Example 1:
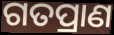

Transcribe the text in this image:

ଗତପ୍ରାଣ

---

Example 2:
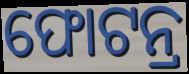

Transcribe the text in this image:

ଫୋଟନ୍ର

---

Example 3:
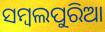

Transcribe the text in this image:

ସମ୍ୱଲପୁରିଆ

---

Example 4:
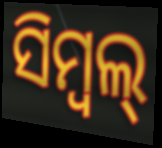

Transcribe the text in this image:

ସିମ୍ବଲ୍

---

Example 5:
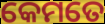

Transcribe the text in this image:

କେମତେ